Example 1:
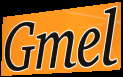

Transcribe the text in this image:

Gmel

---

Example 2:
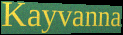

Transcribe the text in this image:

Kayvanna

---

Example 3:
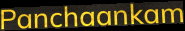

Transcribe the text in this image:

Panchaankam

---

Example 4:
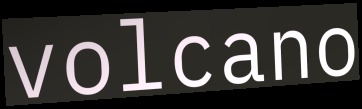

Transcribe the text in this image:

volcano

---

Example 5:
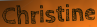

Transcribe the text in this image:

Christine